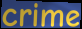
crime